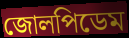
জোলপিডেম